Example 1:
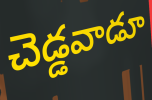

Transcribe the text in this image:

చెడ్డవాడూ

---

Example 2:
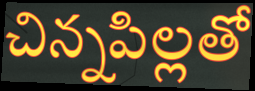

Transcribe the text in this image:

చిన్నపిల్లతో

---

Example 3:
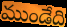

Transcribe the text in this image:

ముండేది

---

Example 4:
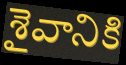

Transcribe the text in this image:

శైవానికి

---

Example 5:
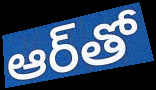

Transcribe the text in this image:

ఆర్‌తో